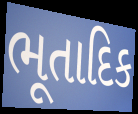
ભૂતાદિક